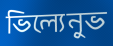
ভিল্যেনুভ